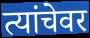
त्यांचेवर